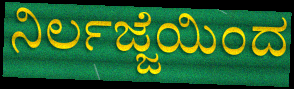
ನಿರ್ಲಜ್ಜೆಯಿಂದ